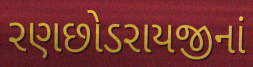
રણછોડરાયજીનાં